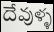
దేవుళ్ళ